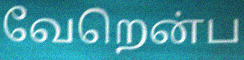
வேறென்ப